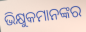
ଭିକ୍ଷୁକମାନଙ୍କର